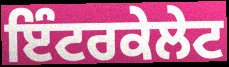
ਇੰਟਰਕੇਲੇਟ